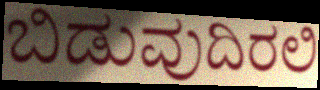
ಬಿಡುವುದಿರಲಿ